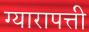
ग्यारापत्ती